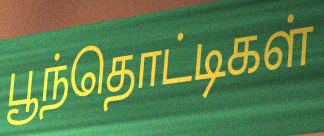
பூந்தொட்டிகள்